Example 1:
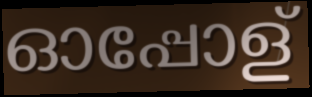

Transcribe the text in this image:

ഓപ്പോള്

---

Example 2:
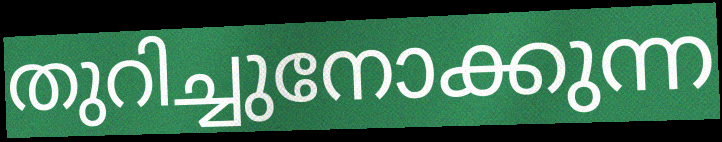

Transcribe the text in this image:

തുറിച്ചുനോക്കുന്ന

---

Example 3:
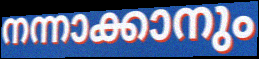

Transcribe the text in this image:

നന്നാക്കാനും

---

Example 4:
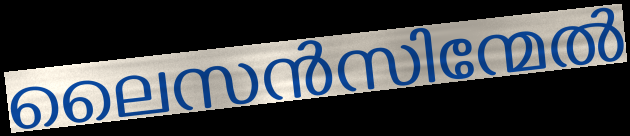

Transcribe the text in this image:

ലൈസൻസിന്മേൽ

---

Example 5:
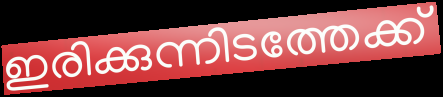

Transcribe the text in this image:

ഇരിക്കുന്നിടത്തേക്ക്